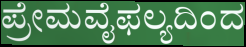
ಪ್ರೇಮವೈಫಲ್ಯದಿಂದ